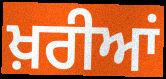
ਖ਼ਰੀਆਂ